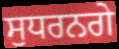
ਸੁਧਰਨਗੇ